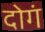
दोगं